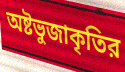
অষ্টভুজাকৃতির